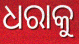
ଧରାକୁ